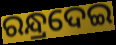
ରନ୍ଧ୍ରଦେଇ